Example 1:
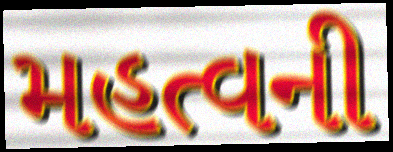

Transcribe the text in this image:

મહત્વની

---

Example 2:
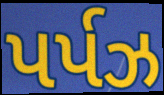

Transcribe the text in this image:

પર્પઝ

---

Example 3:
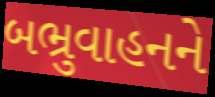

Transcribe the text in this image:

બભ્રુવાહનને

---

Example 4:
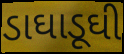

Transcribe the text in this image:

ડાઘાડૂઘી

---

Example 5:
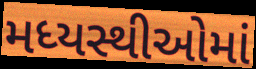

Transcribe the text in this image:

મધ્યસ્થીઓમાં